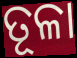
ତୂଳା